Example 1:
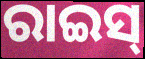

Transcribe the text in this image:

ରାଇସ୍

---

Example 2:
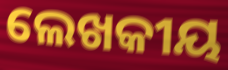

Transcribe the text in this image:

ଲେଖକୀୟ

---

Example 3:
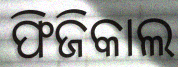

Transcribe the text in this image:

ଫିଜିକାଲ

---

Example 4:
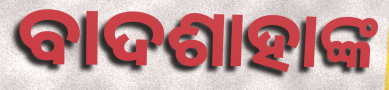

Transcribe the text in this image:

ବାଦଶାହାଙ୍କ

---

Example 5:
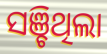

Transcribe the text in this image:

ସଞ୍ଚିଥିଲା